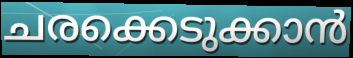
ചരക്കെടുക്കാൻ